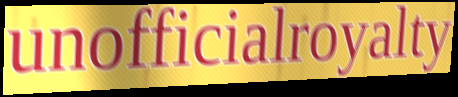
unofficialroyalty